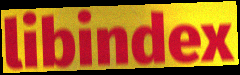
libindex